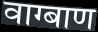
वाग्बाण